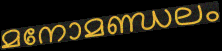
മനോമണ്ഡലം